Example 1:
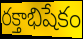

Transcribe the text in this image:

రక్తాభిషేకం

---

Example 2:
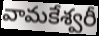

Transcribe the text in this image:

వామకేశ్వరీ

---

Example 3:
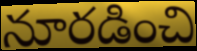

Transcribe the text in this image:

నూరడించి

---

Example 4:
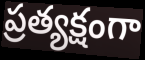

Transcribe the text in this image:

ప్రత్యక్షంగా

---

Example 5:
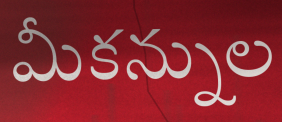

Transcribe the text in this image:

మీకన్నుల